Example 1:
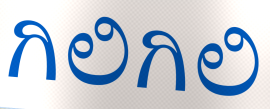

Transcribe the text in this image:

ಗಿಲಿಗಿಲಿ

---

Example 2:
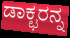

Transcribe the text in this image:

ಡಾಕ್ಟರನ್ನ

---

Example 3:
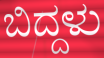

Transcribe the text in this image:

ಬಿದ್ದಳು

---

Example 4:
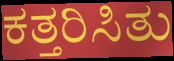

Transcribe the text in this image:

ಕತ್ತರಿಸಿತು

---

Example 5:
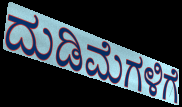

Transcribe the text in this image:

ದುಡಿಮೆಗಳಿಗೆ